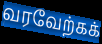
வரவேற்கக்